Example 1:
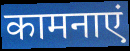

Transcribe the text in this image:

कामनाएं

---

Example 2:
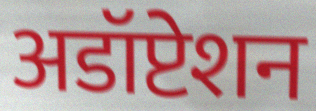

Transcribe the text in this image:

अडॉप्टेशन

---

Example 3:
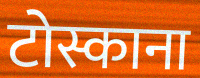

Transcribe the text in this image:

टोस्काना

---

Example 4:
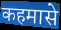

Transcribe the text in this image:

कहमासे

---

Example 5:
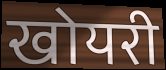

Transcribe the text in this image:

खोयरी